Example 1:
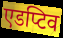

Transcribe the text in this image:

एडप्टिव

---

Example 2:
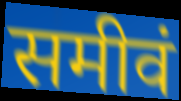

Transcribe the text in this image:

समीवं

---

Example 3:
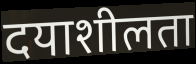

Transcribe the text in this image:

दयाशीलता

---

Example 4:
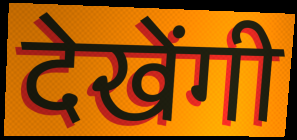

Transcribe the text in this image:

देखेंगी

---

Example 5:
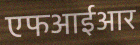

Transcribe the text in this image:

एफआईआर